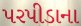
પરપીડાના